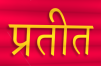
प्रतीत